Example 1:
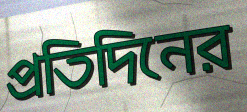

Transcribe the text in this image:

প্রতিদিনের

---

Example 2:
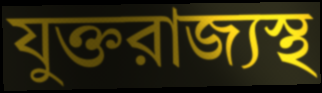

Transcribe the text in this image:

যুক্তরাজ্যস্থ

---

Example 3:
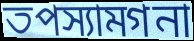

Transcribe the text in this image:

তপস্যামগনা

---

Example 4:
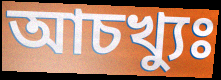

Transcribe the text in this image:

আচখ্যুঃ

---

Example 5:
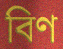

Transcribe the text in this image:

বিণ